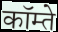
कॉम्ते